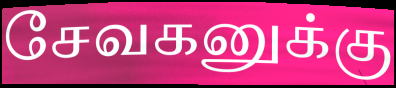
சேவகனுக்கு